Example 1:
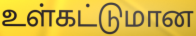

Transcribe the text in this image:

உள்கட்டுமான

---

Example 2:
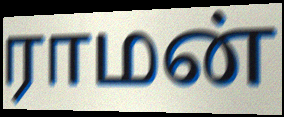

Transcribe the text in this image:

ராமன்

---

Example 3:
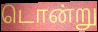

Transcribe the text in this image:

டொன்று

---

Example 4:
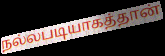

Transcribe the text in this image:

நல்லபடியாகத்தான்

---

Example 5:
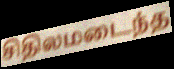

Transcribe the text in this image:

சிதிலமடைந்த